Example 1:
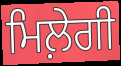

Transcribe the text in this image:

ਮਿਲ਼ੇਗੀ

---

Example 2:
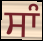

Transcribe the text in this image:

ਸਾੰ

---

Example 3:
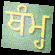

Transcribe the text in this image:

ਥੰਮ੍ਹ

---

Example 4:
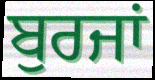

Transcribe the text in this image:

ਬੁਰਜਾਂ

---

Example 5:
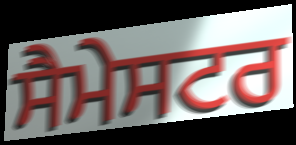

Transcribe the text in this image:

ਸੈਮੇਸਟਰ